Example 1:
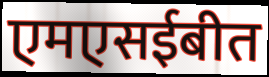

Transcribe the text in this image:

एमएसईबीत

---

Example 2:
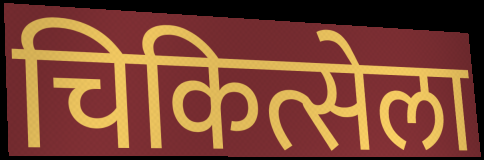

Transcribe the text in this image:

चिकित्सेला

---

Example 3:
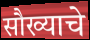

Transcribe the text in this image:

सौख्याचे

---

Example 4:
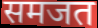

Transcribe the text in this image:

समजत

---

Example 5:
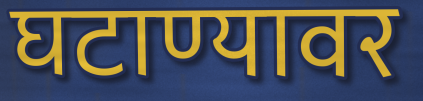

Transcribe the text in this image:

घटाण्यावर